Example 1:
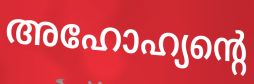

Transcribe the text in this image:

അഹോഹ്യന്റെ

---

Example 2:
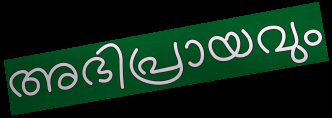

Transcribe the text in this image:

അഭിപ്രായവും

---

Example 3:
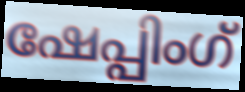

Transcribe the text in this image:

ഷേപ്പിംഗ്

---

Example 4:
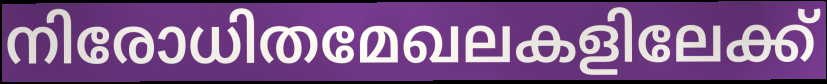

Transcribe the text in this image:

നിരോധിതമേഖലകളിലേക്ക്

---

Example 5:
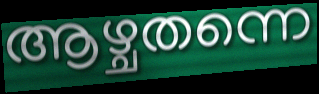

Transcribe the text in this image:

ആഴ്ചതന്നെ